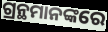
ଗ୍ରନ୍ଥମାନଙ୍କରେ